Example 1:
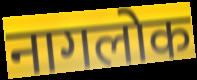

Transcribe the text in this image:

नागलोक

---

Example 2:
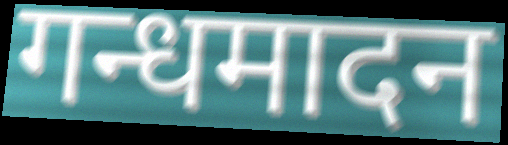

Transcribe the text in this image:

गन्धमादन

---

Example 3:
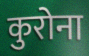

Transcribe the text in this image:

कुरोना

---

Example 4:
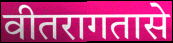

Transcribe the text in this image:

वीतरागतासे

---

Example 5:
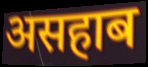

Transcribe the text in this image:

असहाब